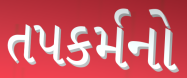
તપકર્મનો